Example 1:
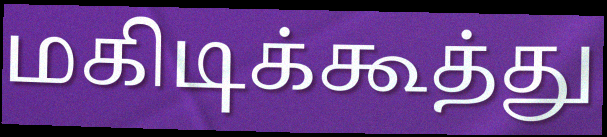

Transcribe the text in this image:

மகிடிக்கூத்து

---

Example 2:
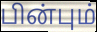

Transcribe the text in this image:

பின்பும்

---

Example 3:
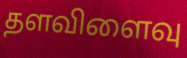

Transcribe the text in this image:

தளவிளைவு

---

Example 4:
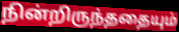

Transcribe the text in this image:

நின்றிருந்ததையும்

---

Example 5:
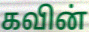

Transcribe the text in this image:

கவின்